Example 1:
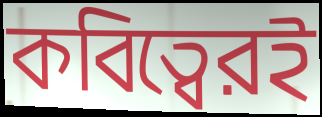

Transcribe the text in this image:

কবিত্বেরই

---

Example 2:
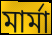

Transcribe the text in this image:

মার্মা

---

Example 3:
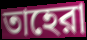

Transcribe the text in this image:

তাহেরা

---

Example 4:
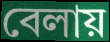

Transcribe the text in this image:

বেলায়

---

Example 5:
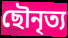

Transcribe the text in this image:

ছৌনৃত্য